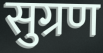
सुग्रण